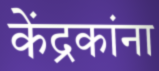
केंद्रकांना